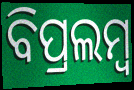
ବିପ୍ରଲମ୍ବ